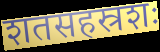
शतसहस्रशः